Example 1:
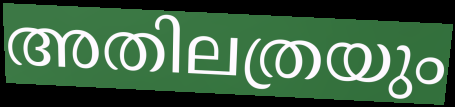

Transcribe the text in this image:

അതിലത്രയും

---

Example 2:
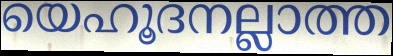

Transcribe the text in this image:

യെഹൂദനല്ലാത്ത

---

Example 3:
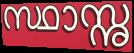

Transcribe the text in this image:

സ്ഥാസ്നു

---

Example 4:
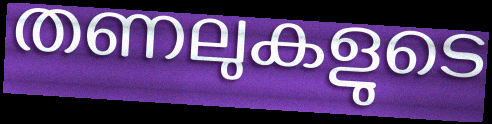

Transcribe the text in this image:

തണലുകളുടെ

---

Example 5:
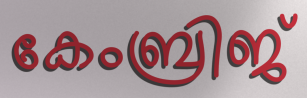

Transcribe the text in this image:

കേംബ്രിജ്